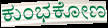
ಕುಂಭಕೋಣ